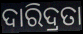
ଦାରିଦ୍ରତା